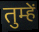
तुम्‍हें